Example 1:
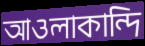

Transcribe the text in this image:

আওলাকান্দি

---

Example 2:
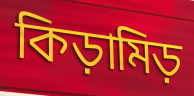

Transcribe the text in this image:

কিড়ামিড়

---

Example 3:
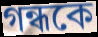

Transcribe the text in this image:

গন্ধকে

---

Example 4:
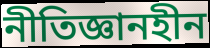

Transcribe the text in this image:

নীতিজ্ঞানহীন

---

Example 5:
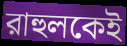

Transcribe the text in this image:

রাহুলকেই